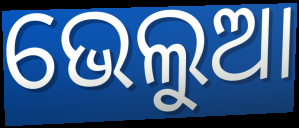
ଭେଲୁଆ